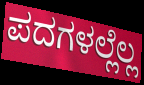
ಪದಗಳಲ್ಲೆಲ್ಲ